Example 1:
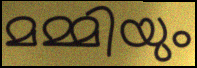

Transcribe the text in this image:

മമ്മിയും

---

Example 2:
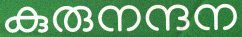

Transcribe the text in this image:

കുരുനന്ദന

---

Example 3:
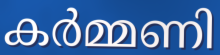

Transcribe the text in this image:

കർമ്മണി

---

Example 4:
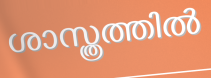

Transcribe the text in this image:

ശാസ്ത്രത്തിൽ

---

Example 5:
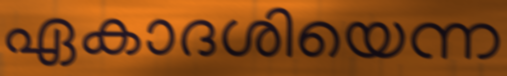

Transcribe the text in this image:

ഏകാദശിയെന്ന